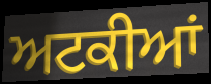
ਅਟਕੀਆਂ